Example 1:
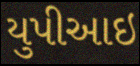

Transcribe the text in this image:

યુપીઆઇ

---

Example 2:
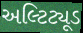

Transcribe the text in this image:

અલ્ટિટ્યૂડ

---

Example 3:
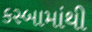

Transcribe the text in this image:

કસ્બામાંથી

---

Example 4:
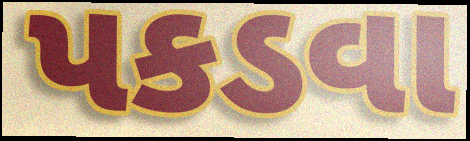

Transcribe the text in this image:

પકડવા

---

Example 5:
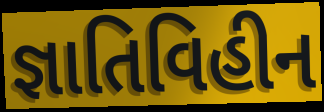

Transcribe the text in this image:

જ્ઞાતિવિહીન